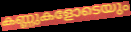
കണ്ണുകളോടെയും